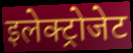
इलेक्ट्रोजेट